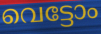
വെട്ടോം